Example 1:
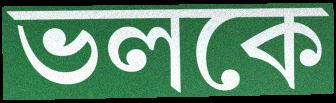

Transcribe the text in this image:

ভলকে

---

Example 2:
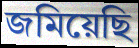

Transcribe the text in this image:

জমিয়েছি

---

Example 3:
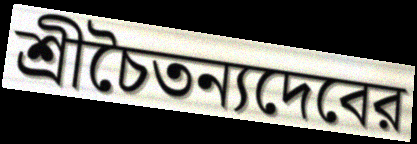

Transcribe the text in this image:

শ্রীচৈতন্যদেবের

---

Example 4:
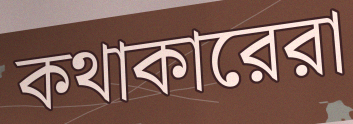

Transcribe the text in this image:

কথাকারেরা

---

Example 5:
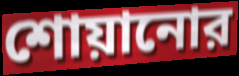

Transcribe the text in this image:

শোয়ানোর